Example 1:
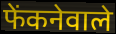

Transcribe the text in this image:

फेंकनेवाले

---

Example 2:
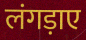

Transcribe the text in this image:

लंगड़ाए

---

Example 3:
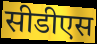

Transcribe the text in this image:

सीडीएस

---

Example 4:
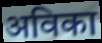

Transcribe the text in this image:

अविका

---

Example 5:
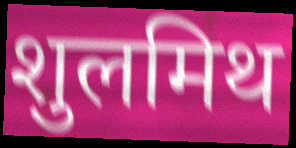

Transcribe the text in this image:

शुलमिथ